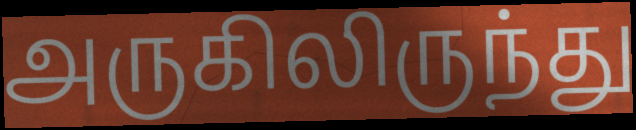
அருகிலிருந்து